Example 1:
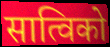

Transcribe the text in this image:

सात्विको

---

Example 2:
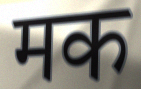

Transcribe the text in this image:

मक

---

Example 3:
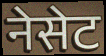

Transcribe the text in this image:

नेसेट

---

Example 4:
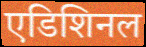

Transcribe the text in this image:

एडिशिनल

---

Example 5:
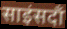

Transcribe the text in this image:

साइंसदाँ